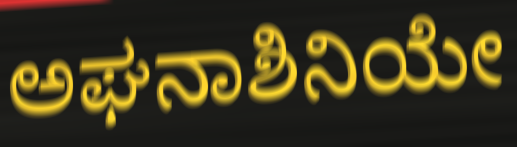
ಅಘನಾಶಿನಿಯೇ